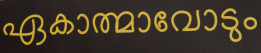
ഏകാത്മാവോടും